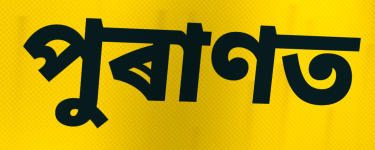
পুৰাণত